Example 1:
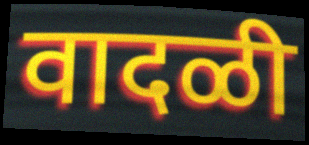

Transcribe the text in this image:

वादळी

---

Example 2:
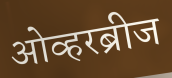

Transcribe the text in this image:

ओव्हरब्रीज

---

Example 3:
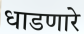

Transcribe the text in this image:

धाडणारे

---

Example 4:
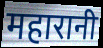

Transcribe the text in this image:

महारानी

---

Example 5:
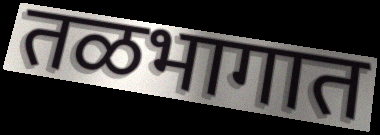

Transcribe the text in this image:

तळभागात